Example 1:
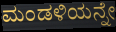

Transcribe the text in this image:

ಮಂಡಳಿಯನ್ನೇ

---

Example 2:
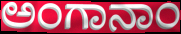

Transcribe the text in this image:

ಅಂಗಾನಾಂ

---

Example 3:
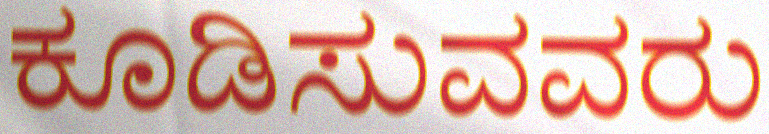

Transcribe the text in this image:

ಕೂಡಿಸುವವರು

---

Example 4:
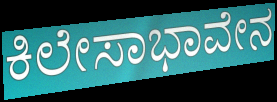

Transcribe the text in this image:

ಕಿಲೇಸಾಭಾವೇನ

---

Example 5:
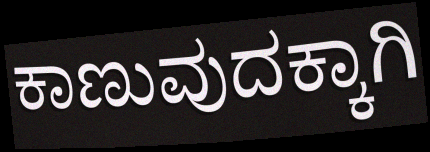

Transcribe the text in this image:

ಕಾಣುವುದಕ್ಕಾಗಿ